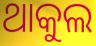
ଥାକୁଲ